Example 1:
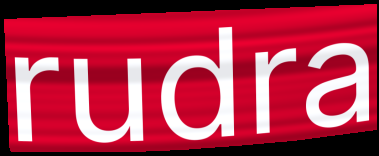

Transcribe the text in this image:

rudra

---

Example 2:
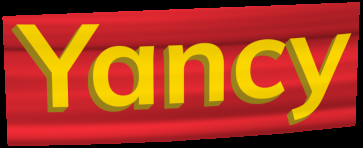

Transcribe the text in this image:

Yancy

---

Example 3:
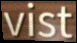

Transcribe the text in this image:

vist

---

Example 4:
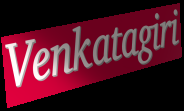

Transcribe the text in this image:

Venkatagiri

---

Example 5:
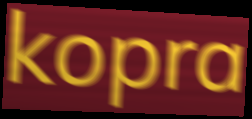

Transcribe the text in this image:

kopra